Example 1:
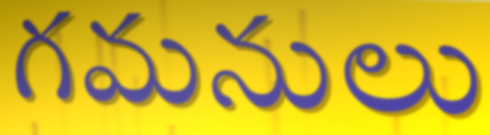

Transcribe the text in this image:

గమనులు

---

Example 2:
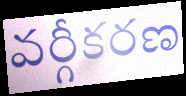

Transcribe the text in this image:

వర్గీకరణ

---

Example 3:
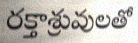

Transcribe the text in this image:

రక్తాశ్రువులతో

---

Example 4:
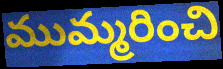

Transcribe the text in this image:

ముమ్మరించి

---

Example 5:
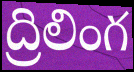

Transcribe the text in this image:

ద్రిలింగ